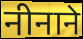
नीनाने